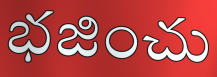
భజించు